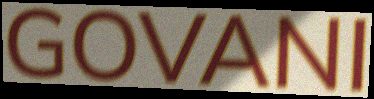
GOVANI